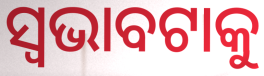
ସ୍ଵଭାବଟାକୁ